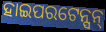
ହାଇପରଟେନ୍ସନ୍